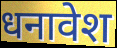
धनावेश